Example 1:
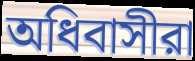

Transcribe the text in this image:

অধিবাসীরা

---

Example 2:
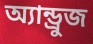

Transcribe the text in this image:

অ্যান্ড্রুজ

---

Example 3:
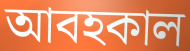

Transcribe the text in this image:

আবহকাল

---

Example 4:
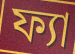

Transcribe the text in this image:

ফ্যা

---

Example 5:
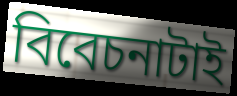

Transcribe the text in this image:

বিবেচনাটাই